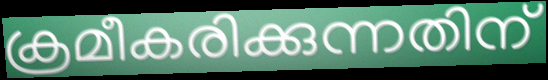
ക്രമീകരിക്കുന്നതിന്